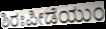
ಶಿರಃಪೀಡೆಯುಂ